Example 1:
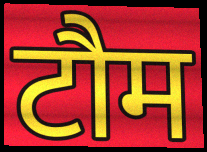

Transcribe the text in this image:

टौम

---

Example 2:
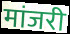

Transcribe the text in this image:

मांजरी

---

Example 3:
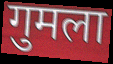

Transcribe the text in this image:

गुमला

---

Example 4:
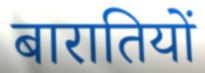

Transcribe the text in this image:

बारातियों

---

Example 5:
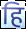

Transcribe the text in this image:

हि